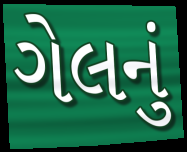
ગેલનું